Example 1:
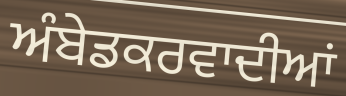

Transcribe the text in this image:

ਅੰਬੇਡਕਰਵਾਦੀਆਂ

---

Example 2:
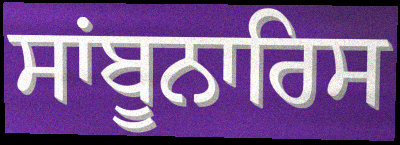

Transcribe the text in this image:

ਸਾਂਬੂਨਾਰਿਸ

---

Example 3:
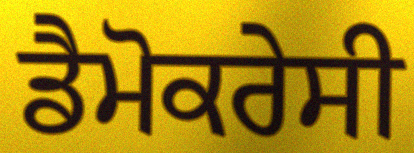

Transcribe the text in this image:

ਡੈਮੋਕਰੇਸੀ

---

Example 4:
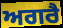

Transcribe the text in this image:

ਅਗਰੈ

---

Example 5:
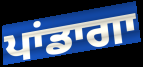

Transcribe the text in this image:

ਪਾਂਡਾਗਾ